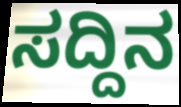
ಸದ್ದಿನ